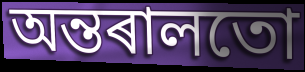
অন্তৰালতো